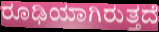
ರೂಢಿಯಾಗಿರುತ್ತದೆ